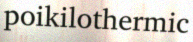
poikilothermic